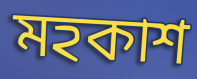
মহকাশ